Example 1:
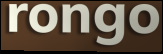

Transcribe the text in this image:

rongo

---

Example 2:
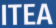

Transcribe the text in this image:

ITEA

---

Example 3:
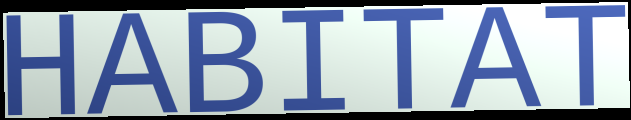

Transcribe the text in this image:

HABITAT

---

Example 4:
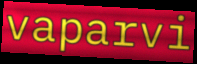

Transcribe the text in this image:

vaparvi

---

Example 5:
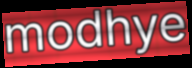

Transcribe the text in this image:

modhye